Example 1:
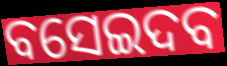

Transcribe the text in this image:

ବସେଇଦବ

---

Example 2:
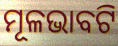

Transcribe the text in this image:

ମୂଳଭାବଟି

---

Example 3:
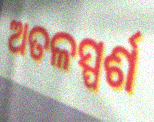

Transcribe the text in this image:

ଅତଳସ୍ପର୍ଶ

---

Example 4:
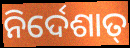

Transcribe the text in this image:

ନିର୍ଦେଶାତ୍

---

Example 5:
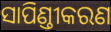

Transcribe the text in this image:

ସାପିଣ୍ଡୀକରଣ